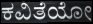
ಕವಿತೆಯೋ